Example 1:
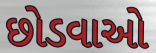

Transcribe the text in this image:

છોડવાઓ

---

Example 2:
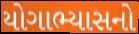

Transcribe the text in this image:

યોગાભ્યાસનો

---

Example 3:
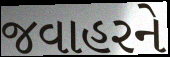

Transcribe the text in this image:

જવાહરને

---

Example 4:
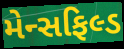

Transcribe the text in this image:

મેન્સફિલ્ડ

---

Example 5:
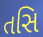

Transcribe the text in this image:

તસિ